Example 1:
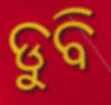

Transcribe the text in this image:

ଡୁବି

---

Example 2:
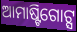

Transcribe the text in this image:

ଆମାଷ୍ଟିଗୋଟ୍ସ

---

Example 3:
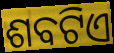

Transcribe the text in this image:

ଶବଟିଏ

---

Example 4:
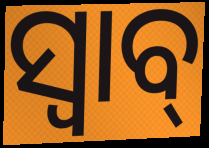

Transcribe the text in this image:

ସ୍ବାବ୍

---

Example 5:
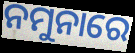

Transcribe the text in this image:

ନମୁନାରେ